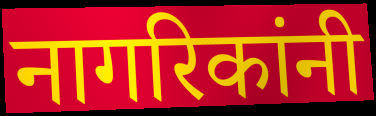
नागरिकांनी